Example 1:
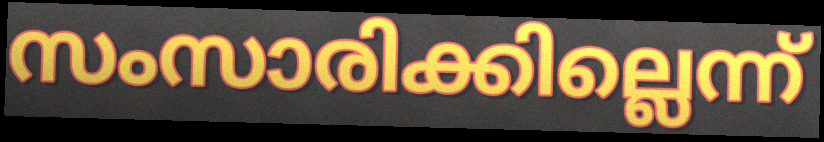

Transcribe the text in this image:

സംസാരിക്കില്ലെന്ന്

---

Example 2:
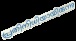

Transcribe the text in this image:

പ്രതിനിധിയായിരുന്നു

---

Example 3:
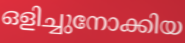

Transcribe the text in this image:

ഒളിച്ചുനോക്കിയ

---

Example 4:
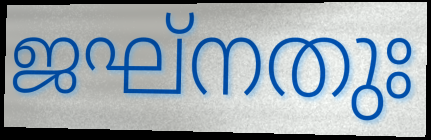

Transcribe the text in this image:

ജഘ്നതുഃ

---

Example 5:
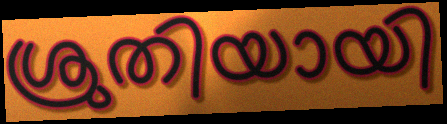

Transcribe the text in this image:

ശ്രുതിയായി